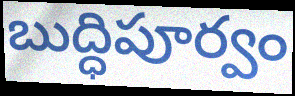
బుద్ధిపూర్వం